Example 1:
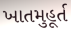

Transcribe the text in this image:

ખાતમુહૂર્ત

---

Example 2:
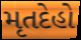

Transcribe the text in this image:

મૃતદેહો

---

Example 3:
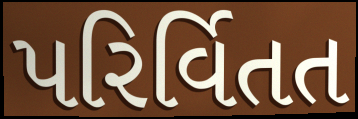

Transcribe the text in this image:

પરિર્વિતત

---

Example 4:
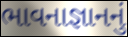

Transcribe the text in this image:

ભાવનાજ્ઞાનનું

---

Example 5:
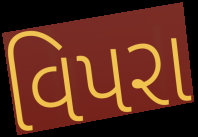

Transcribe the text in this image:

વિપરા